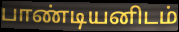
பாண்டியனிடம்